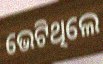
ଭେଟିଥିଲେ